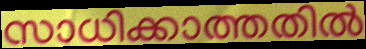
സാധിക്കാത്തതിൽ